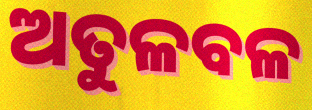
ଅତୁଳବଳ